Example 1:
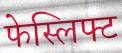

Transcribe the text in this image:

फेस्लिफ्ट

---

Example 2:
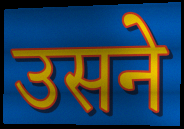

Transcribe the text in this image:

उसने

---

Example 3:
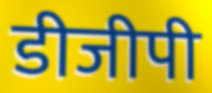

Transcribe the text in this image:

डीजीपी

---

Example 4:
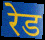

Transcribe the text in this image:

रेड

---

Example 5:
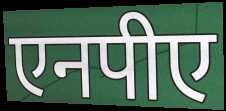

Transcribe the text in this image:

एनपीए